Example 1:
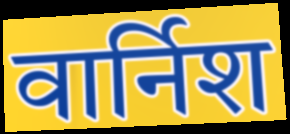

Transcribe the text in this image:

वार्निश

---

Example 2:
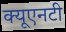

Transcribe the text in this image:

क्यूएनटी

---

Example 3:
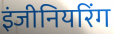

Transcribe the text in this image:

इंजीनियरिंग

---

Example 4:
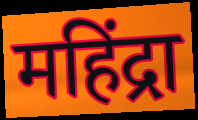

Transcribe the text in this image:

महिंद्रा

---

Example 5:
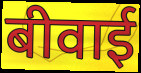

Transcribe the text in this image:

बीवाई